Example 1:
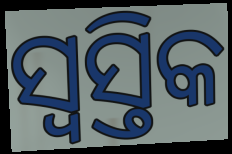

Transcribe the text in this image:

ସ୍ୱସ୍ତିକ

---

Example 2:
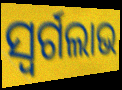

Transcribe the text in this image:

ସ୍ୱର୍ଗଲାଭ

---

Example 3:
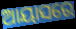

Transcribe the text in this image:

ଆୟାସରେ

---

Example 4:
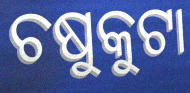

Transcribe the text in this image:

ଚଷୁକୁଟା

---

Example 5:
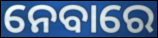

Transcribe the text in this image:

ନେବାରେ